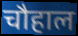
चौहाल